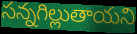
సన్నగిల్లుతాయని